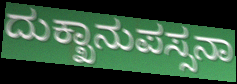
ದುಕ್ಖಾನುಪಸ್ಸನಾ